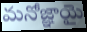
మనోజ్ఞాయై